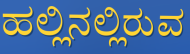
ಹಲ್ಲಿನಲ್ಲಿರುವ